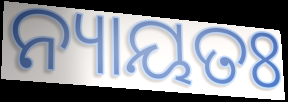
ନ୍ୟାୟତଃ